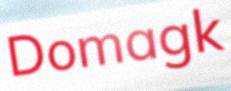
Domagk